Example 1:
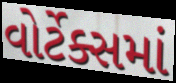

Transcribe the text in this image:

વોર્ટેક્સમાં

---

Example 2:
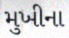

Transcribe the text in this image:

મુખીના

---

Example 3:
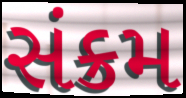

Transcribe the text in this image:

સંક્રમ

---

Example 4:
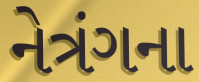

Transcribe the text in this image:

નેત્રંગના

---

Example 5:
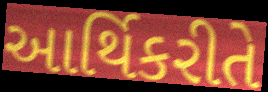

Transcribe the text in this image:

આર્થિકરીતે